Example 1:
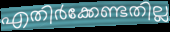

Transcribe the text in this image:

എതിർക്കേണ്ടതില്ല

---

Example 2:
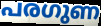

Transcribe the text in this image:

പരഗുണ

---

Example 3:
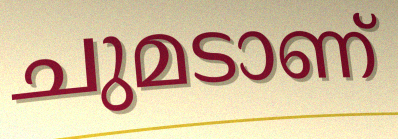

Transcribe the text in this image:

ചുമടാണ്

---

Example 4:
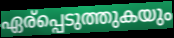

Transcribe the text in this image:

ഏര്പ്പെടുത്തുകയും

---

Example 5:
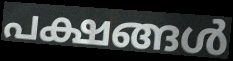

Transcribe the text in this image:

പക്ഷങ്ങൾ